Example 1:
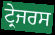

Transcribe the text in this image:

ਟ੍ਰੇਜਰਸ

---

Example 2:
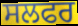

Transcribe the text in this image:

ਸਲਫਰ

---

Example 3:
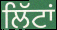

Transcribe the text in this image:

ਲਿੱਟਾਂ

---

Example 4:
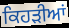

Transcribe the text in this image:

ਕਿਹੜੀਆਂ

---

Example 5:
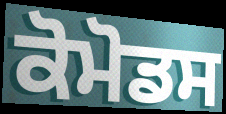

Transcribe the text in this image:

ਕੋਮੋਡਸ